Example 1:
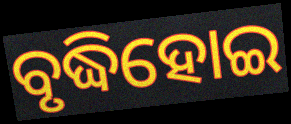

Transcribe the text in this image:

ବୃଦ୍ଧିହୋଇ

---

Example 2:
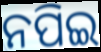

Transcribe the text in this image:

ନପିଇ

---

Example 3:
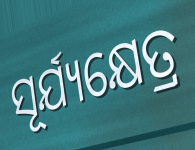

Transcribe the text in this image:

ସୂର୍ଯ୍ୟକ୍ଷେତ୍ର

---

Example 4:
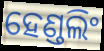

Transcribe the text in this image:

ହେଣ୍ଡଲିଂ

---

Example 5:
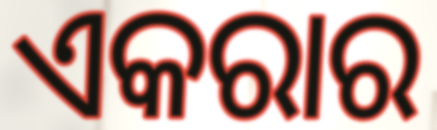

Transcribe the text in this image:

ଏକରାର